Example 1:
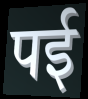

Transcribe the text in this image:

पई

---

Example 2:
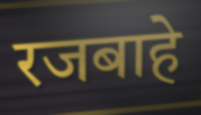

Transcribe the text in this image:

रजबाहे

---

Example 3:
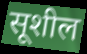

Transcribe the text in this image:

सूशील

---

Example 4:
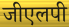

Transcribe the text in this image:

जीएलपी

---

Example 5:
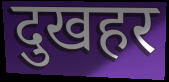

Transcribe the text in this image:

दुखहर